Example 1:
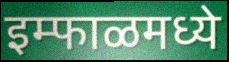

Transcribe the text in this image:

इम्फाळमध्ये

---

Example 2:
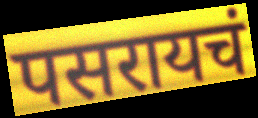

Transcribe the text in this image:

पसरायचं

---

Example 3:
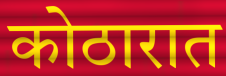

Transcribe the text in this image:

कोठारात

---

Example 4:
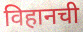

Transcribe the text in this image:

विहानची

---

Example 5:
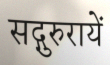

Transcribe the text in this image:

सद्गुरुरायें